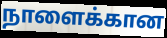
நாளைக்கான